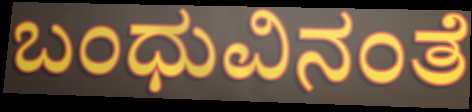
ಬಂಧುವಿನಂತೆ